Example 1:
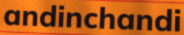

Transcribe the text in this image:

andinchandi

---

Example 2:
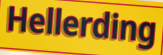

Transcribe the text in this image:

Hellerding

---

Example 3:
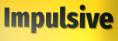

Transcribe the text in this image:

Impulsive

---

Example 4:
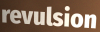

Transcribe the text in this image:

revulsion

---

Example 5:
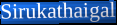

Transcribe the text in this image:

Sirukathaigal